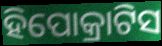
ହିପୋକ୍ରାଟିସ